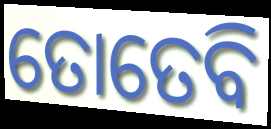
ତୋତେବି